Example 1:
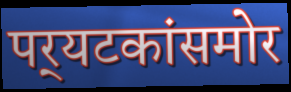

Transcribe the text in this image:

पर्यटकांसमोर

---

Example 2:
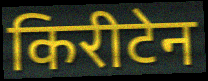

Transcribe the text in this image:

किरीटेन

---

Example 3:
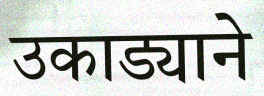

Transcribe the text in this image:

उकाड्याने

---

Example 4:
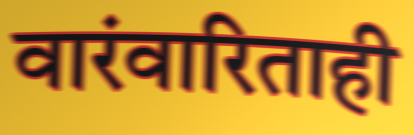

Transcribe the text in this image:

वारंवारिताही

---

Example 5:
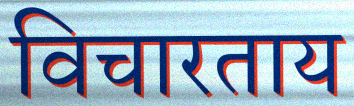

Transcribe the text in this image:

विचारताय